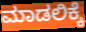
ಮಾಡಲಿಕ್ಕೆ